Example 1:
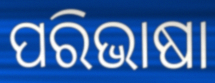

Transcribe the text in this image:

ପରିଭାଷା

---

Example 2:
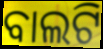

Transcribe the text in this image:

ବାଲଟି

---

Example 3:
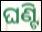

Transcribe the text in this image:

ଘଣ୍ଟି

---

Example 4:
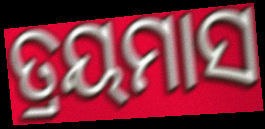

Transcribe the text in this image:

ତ୍ରୟମାସ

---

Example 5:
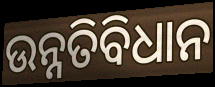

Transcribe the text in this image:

ଉନ୍ନତିବିଧାନ